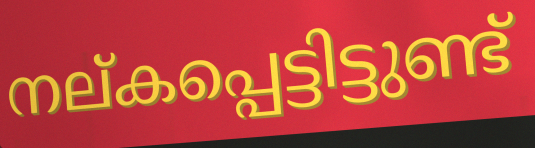
നല്കപ്പെട്ടിട്ടുണ്ട്